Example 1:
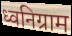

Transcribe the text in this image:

ध्वनिग्राम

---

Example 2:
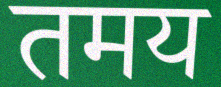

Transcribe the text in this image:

तमय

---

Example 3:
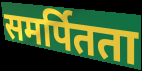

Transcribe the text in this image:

समर्पितता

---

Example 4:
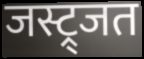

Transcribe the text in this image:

जस्ट्र्जत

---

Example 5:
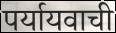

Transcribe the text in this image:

पर्यायवाची